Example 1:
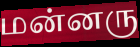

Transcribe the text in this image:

மன்னரு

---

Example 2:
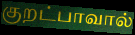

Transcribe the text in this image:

குறட்பாவால்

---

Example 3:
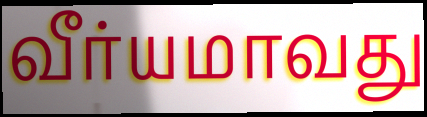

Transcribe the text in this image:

வீர்யமாவது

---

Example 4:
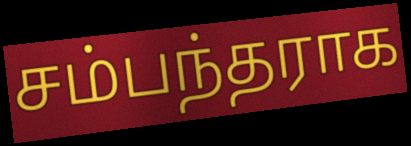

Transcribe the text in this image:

சம்பந்தராக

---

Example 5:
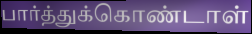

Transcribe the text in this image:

பார்த்துக்கொண்டாள்